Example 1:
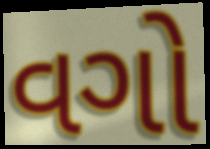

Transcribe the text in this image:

વગો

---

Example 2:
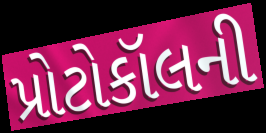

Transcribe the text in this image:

પ્રોટોકૉલની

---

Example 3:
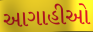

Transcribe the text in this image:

આગાહીઓ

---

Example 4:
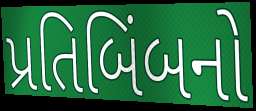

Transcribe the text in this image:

પ્રતિબિંબનો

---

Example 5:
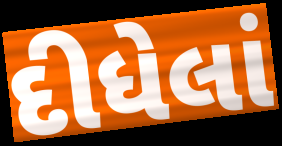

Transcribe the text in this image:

દીધેલાં